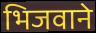
भिजवाने